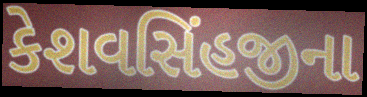
કેશવસિંહજીના